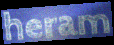
heram